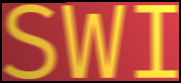
SWI